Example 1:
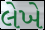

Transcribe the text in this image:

લેખે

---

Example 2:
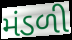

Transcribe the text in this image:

મંડળી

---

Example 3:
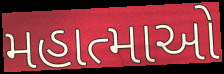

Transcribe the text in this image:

મહાત્માઓ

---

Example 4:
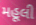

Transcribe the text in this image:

મહૂલી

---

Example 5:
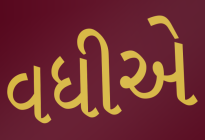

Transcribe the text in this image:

વધીએ